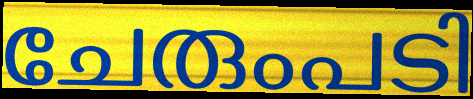
ചേരുംപടി